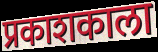
प्रकाशकाला